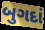
બુગદાં